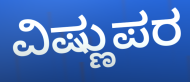
ವಿಷ್ಣುಪರ